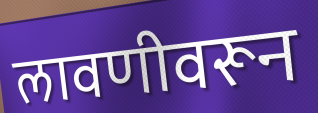
लावणीवरून